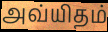
அவ்யிதம்